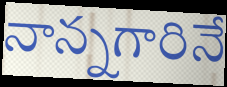
నాన్నగారినే